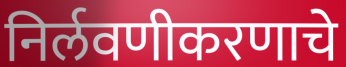
निर्लवणीकरणाचे